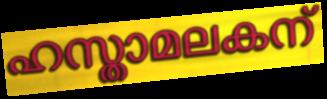
ഹസ്താമലകന്